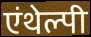
एंथेल्पी